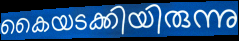
കൈയടക്കിയിരുന്നു